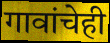
गावांचेही